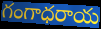
గంగాధరాయ